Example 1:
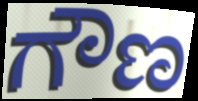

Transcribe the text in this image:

ಗೌಣ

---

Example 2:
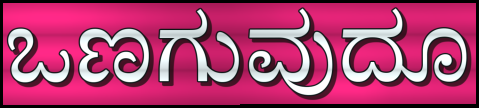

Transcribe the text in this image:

ಒಣಗುವುದೂ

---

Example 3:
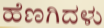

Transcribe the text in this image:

ಹೆಣಗಿದಳು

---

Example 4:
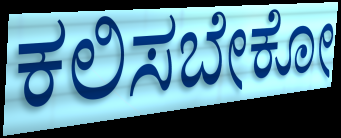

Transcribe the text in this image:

ಕಲಿಸಬೇಕೋ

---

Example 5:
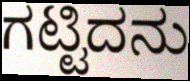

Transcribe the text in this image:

ಗಟ್ಟಿದನು